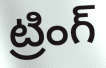
ట్రింగ్